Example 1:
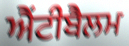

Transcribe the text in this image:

ਐਂਟੀਬੈਲਮ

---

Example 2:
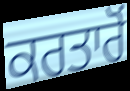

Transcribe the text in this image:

ਕਰਤਾਰੋਂ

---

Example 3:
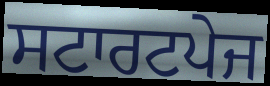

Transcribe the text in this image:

ਸਟਾਰਟਪੇਜ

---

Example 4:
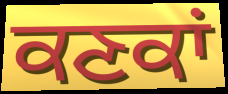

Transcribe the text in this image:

ਕਣਕਾਂ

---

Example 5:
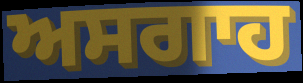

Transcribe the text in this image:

ਅਸਗਾਹ